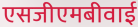
एसजीएमबीवाई